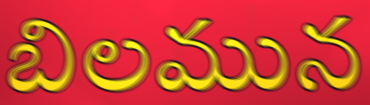
బిలమున